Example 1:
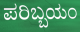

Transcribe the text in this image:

ಪರಿಬ್ಬಯಂ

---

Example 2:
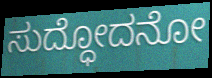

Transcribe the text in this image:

ಸುದ್ಧೋದನೋ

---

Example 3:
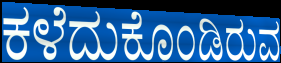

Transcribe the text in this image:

ಕಳೆದುಕೊಂಡಿರುವ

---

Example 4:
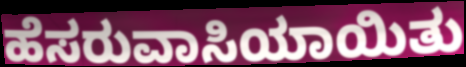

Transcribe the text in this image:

ಹೆಸರುವಾಸಿಯಾಯಿತು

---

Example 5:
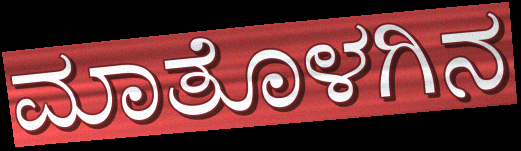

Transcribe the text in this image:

ಮಾತೊಳಗಿನ